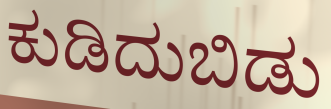
ಕುಡಿದುಬಿಡು